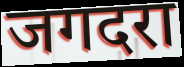
जगदरा